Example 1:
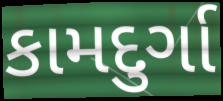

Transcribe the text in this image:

કામદુર્ગા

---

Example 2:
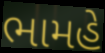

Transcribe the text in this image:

ભામહે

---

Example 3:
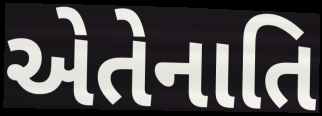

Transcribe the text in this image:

એતેનાતિ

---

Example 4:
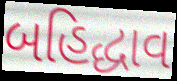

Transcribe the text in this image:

બહિદ્ધાવ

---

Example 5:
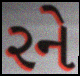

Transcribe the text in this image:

રને